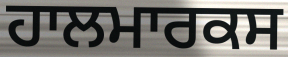
ਹਾਲਮਾਰਕਸ